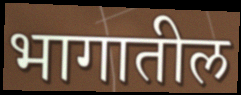
भागातील